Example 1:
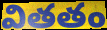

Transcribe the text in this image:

వితతం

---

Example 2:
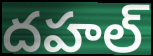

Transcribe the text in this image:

దహల్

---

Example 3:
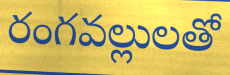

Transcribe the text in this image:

రంగవల్లులతో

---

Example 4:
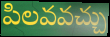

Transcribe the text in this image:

పిలవవచ్చు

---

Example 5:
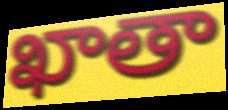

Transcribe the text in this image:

ఖాతా